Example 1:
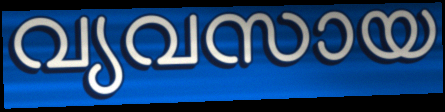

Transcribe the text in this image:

വ്യവസായ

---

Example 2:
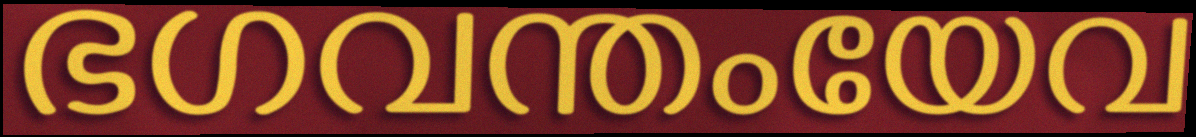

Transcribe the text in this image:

ഭഗവന്തംയേവ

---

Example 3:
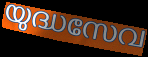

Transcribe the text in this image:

യുദ്ധസേവ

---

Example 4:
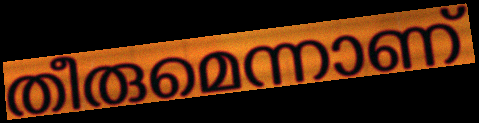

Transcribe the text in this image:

തീരുമെന്നാണ്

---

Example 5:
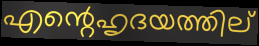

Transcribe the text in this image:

എന്റെഹൃദയത്തില്